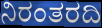
ನಿರಂತರದಿ